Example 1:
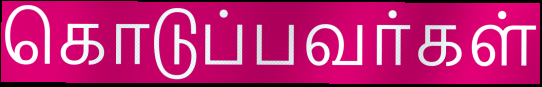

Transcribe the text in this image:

கொடுப்பவர்கள்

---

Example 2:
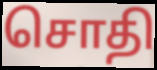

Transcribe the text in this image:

சொதி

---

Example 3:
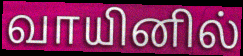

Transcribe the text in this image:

வாயினில்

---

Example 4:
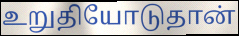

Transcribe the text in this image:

உறுதியோடுதான்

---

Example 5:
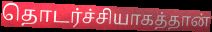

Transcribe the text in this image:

தொடர்ச்சியாகத்தான்